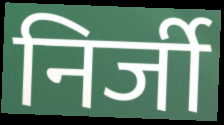
निर्जी